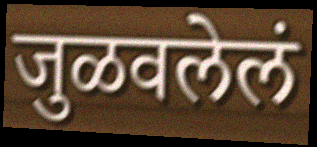
जुळवलेलं